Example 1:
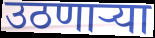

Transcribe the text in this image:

उठणाऱ्या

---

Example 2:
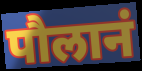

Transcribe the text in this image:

पौलानं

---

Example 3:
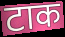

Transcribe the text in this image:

टाक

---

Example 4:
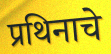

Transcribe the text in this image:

प्रथिनाचे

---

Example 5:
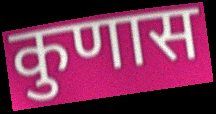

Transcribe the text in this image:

कुणास